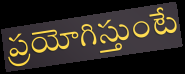
ప్రయోగిస్తుంటే